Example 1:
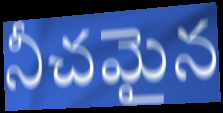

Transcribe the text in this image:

నీచమైన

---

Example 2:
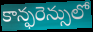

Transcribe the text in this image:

కాన్ఫరెన్సులో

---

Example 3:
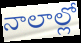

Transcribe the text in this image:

నాలాల్లో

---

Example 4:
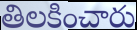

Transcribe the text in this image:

తిలకించారు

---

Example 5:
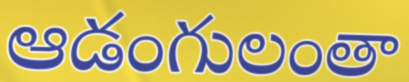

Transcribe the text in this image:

ఆడంగులంతా